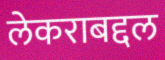
लेकराबद्दल